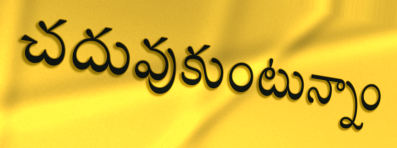
చదువుకుంటున్నాం